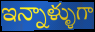
ఇన్నాళ్ళుగా